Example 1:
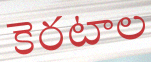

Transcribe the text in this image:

కెరటాల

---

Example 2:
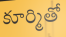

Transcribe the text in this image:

కూర్మితో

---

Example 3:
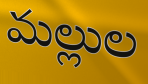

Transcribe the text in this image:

మల్లుల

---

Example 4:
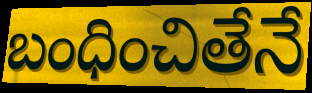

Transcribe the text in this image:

బంధించితేనే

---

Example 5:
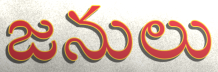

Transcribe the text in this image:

జనులు